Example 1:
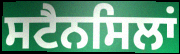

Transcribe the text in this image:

ਸਟੈਨਸਿਲਾਂ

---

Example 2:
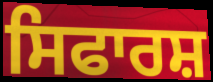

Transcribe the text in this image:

ਸਿਫਾਰਸ਼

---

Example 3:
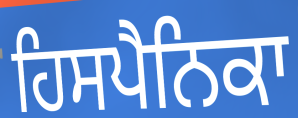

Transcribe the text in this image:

ਹਿਸਪੈਨਿਕਾ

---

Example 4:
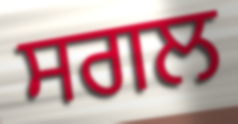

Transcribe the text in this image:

ਸਗਲ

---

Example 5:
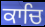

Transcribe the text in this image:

ਕਾਚਿ